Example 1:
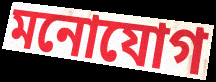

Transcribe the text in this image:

মনোযোগ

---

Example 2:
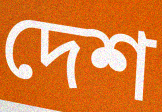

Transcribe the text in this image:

দেশ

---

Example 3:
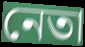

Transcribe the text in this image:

নেতা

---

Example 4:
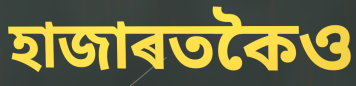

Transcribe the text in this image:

হাজাৰতকৈও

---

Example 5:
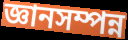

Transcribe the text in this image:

জ্ঞানসম্পন্ন